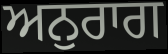
ਅਨੁਰਾਗ